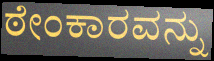
ಠೇಂಕಾರವನ್ನು